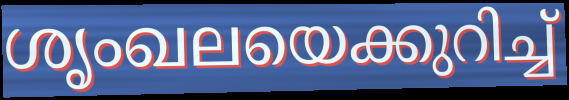
ശൃംഖലയെക്കുറിച്ച്